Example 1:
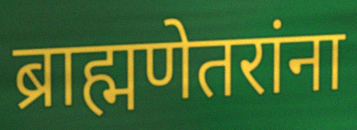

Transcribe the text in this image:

ब्राह्मणेतरांना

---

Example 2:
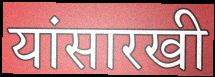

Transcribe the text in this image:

यांसारखी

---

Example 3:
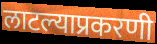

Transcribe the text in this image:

लाटल्याप्रकरणी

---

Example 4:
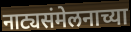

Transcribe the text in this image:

नाट्यसंमेलनाच्या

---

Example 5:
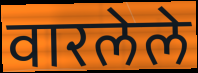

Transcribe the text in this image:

वारलेले